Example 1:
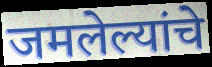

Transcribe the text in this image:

जमलेल्यांचे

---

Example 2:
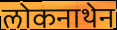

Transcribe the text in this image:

लोकनाथेन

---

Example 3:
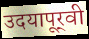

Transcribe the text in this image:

उदयापूर्वी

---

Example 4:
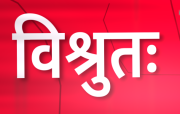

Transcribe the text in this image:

विश्रुतः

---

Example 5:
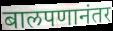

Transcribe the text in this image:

बालपणानंतर